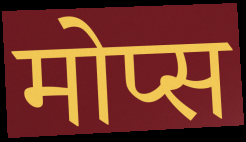
मोप्स